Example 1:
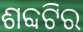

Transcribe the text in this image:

ଶବ୍ଦଟିର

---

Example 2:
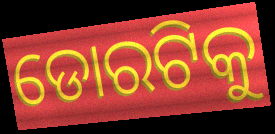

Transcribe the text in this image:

ଡୋରଟିକୁ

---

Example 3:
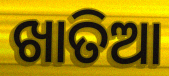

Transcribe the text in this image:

ଖାତିଆ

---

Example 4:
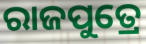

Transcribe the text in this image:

ରାଜପୁତ୍ରେ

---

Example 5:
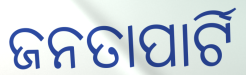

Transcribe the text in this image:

ଜନତାପାର୍ଟି